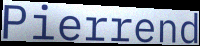
Pierrend